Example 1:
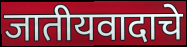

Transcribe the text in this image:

जातीयवादाचे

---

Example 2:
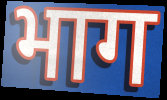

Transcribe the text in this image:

भाग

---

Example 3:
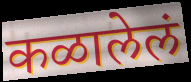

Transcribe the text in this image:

कळालेलं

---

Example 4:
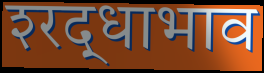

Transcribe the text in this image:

श्रद्धाभाव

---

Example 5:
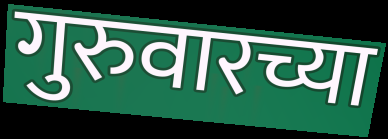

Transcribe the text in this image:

गुरुवारच्या